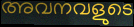
അവനവളുടെ